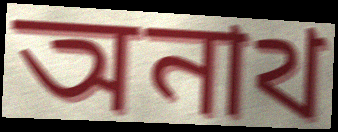
অনাথ